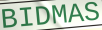
BIDMAS